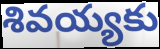
శివయ్యకు